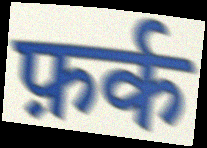
फ़र्क